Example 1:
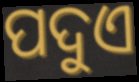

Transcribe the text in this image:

ପଦୁଏ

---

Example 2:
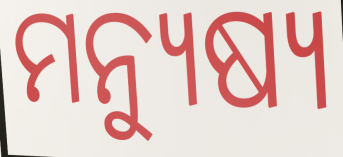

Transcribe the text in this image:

ମନ୍ୟୁଷ୍ୟ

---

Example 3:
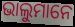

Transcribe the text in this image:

ଭାଲୁମାନେ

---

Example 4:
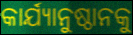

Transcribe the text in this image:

କାର୍ଯ୍ୟାନୁଷ୍ଠାନକୁ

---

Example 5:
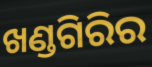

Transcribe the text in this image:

ଖଣ୍ଡଗିରିର